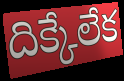
దిక్కేలేక